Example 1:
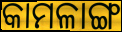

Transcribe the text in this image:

କାମଳାଙ୍ଗ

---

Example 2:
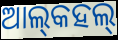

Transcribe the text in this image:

ଆଲ୍‌କହଲ୍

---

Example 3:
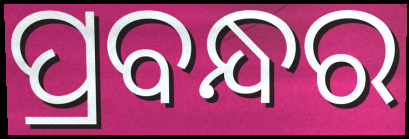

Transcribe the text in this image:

ପ୍ରବନ୍ଧର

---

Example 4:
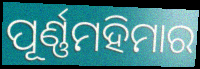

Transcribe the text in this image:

ପୂର୍ଣ୍ଣମହିମାର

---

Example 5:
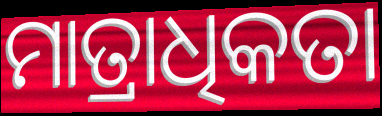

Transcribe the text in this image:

ମାତ୍ରାଧିକତା